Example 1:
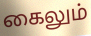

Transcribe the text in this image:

கைலும்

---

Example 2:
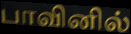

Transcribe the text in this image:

பாவினில்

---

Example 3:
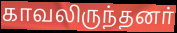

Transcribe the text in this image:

காவலிருந்தனர்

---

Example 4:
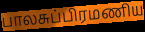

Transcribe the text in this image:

பாலசுப்பிரமணிய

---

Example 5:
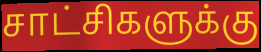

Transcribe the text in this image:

சாட்சிகளுக்கு